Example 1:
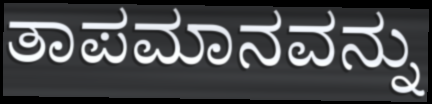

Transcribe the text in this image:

ತಾಪಮಾನವನ್ನು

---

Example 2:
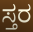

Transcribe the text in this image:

ಸ್ತರ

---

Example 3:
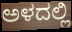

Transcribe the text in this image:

ಅಳದಲ್ಲಿ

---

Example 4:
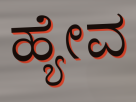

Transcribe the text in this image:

ಹ್ಯೇವ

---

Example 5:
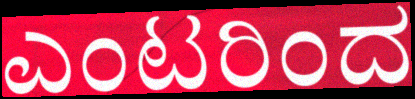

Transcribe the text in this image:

ಎಂಟರಿಂದ